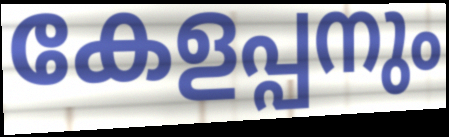
കേളപ്പനും